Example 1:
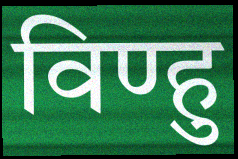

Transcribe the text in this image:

विण्हु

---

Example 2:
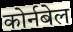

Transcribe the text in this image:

कोर्नबेल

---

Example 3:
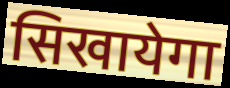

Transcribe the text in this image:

सिखायेगा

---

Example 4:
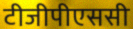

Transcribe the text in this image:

टीजीपीएससी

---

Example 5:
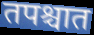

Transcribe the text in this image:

तपश्चात